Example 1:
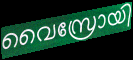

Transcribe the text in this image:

വൈസ്രോയി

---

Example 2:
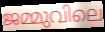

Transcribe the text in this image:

ജമ്മുവിലെ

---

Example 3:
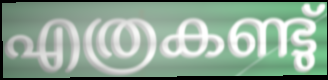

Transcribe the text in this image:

എത്രകണ്ടു്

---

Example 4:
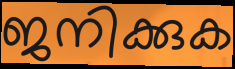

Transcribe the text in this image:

ജനിക്കുക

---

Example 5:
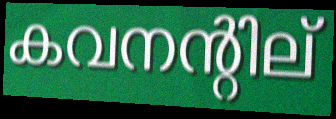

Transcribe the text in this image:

കവനന്റില്